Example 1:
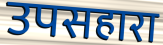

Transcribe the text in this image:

उपसहारा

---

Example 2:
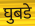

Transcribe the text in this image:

घुबडे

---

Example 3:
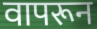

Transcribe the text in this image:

वापरून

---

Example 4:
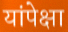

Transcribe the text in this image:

यांपेक्षा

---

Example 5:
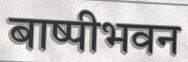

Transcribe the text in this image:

बाष्पीभवन